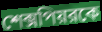
শেক্সপিয়রকে